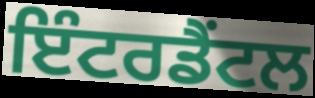
ਇੰਟਰਡੈਂਟਲ